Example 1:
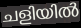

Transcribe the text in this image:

ചളിയിൽ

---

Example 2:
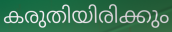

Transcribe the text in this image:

കരുതിയിരിക്കും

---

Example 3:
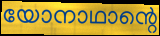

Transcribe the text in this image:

യോനാഥാന്റെ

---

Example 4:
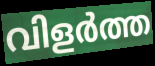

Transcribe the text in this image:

വിളർത്ത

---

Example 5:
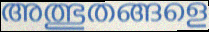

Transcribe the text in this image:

അത്ഭുതങ്ങളെ